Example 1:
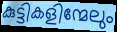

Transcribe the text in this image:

കുട്ടികളിന്മേലും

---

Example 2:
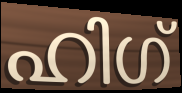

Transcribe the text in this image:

ഹിഗ്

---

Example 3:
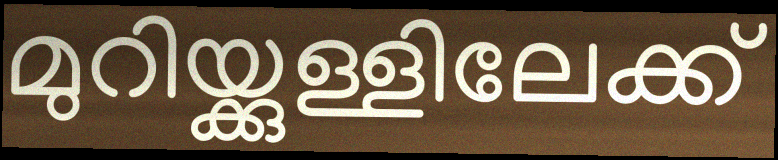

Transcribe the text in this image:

മുറിയ്ക്കുള്ളിലേക്ക്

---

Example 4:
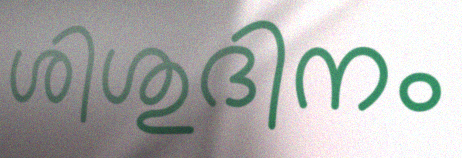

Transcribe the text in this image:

ശിശുദിനം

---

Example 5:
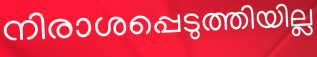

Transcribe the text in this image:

നിരാശപ്പെടുത്തിയില്ല